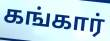
கங்கார்